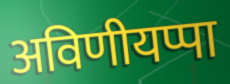
अविणीयप्पा